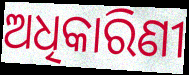
ଅଧିକାରିଣୀ